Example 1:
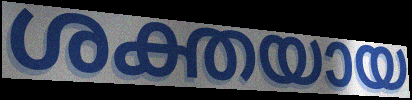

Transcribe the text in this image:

ശക്തയായ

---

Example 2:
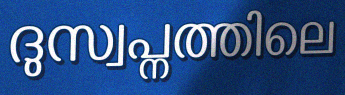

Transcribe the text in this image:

ദുസ്വപ്നത്തിലെ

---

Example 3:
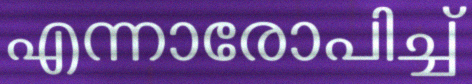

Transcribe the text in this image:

എന്നാരോപിച്ച്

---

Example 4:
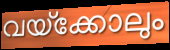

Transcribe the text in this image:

വയ്‌ക്കോലും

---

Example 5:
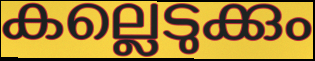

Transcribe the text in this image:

കല്ലെടുക്കും